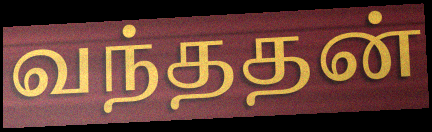
வந்ததன்